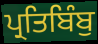
ਪ੍ਰਤਿਬਿੰਬੁ